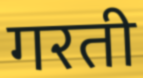
गरती